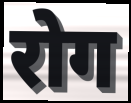
रोग